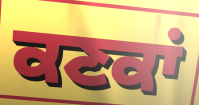
ਕਣਕਾਂ